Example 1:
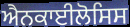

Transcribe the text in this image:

ਐਨਕਾਈਲੋਸਿਸ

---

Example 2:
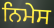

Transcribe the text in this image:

ਨਿਮੇਸ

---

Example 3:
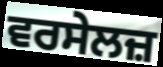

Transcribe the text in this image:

ਵਰਸੇਲਜ਼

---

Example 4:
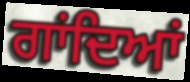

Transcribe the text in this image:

ਗਾਂਦਿਆਂ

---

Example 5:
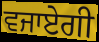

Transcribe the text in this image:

ਵਜਾਏਗੀ